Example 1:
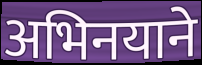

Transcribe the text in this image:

अभिनयाने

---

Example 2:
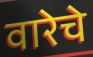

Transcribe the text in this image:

वारेचे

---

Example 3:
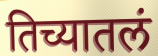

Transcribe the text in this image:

तिच्यातलं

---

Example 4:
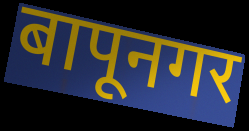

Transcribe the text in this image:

बापूनगर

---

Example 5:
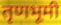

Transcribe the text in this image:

तृणभूमी